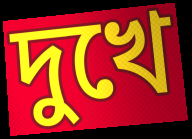
দুখে